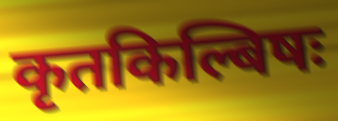
कृतकिल्बिषः